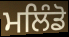
ਮਲਿੰਡੋ